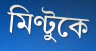
মিণ্টুকে